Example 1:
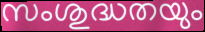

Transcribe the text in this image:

സംശുദ്ധതയും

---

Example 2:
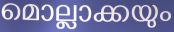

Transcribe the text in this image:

മൊല്ലാക്കയും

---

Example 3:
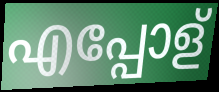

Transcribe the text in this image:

എപ്പോള്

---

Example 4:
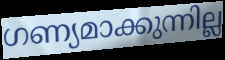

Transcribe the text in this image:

ഗണ്യമാക്കുന്നില്ല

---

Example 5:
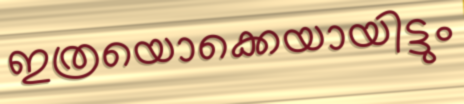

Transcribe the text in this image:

ഇത്രയൊക്കെയായിട്ടും